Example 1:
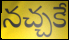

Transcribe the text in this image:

నచ్చకే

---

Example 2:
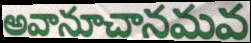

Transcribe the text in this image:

అవానూచానమవ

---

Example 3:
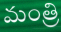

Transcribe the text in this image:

మంత్రి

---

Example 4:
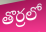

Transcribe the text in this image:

తొర్రలో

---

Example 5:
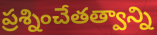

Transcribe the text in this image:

ప్రశ్నించేతత్వాన్ని